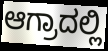
ಆಗ್ರಾದಲ್ಲಿ